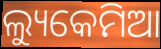
ଲ୍ୟୁକେମିଆ